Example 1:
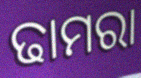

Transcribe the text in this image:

ଢାମରା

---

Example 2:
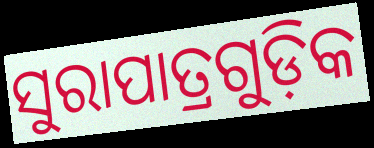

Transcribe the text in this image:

ସୁରାପାତ୍ରଗୁଡ଼ିକ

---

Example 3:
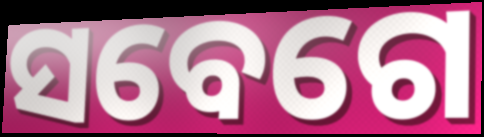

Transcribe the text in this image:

ସବେଗେ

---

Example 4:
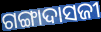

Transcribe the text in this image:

ଗଙ୍ଗାଦାସଜୀ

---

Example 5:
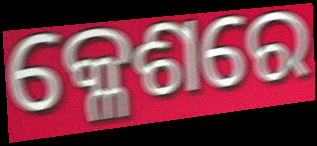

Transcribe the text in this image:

କ୍ଳେଶରେ